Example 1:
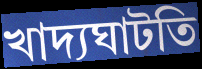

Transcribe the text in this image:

খাদ্যঘাটতি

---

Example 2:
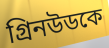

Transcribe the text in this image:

গ্রিনউডকে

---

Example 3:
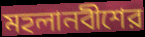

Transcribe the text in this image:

মহলানবীশের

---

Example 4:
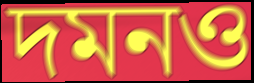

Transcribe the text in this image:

দমনও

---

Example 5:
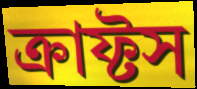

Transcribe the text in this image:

ক্রাফ্টস